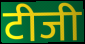
टीजी